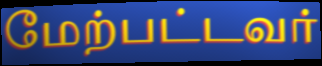
மேற்பட்டவர்